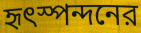
হৃৎস্পন্দনের